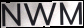
NWM